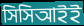
সিসিআইই